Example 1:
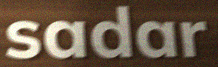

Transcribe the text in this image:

sadar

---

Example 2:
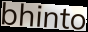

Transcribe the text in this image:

bhinto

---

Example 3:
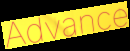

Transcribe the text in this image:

Advance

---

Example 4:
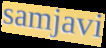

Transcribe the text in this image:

samjavi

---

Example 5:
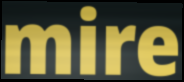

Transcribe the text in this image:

mire